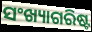
ସଂଖ୍ୟାଗରିଷ୍ଟ